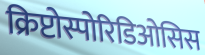
क्रिप्टोस्पोरिडिओसिस